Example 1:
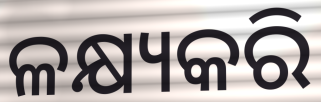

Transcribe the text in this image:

ଳକ୍ଷ୍ୟକରି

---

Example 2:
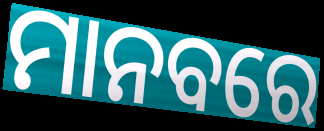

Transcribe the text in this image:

ମାନବରେ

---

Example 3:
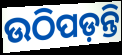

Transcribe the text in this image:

ଉଠିପଡ଼ନ୍ତି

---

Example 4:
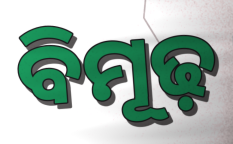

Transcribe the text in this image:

ବିମୂଢ଼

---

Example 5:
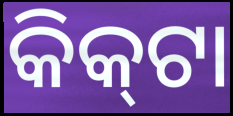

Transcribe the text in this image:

କିକ୍‍ଟା